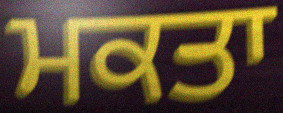
ਮਕਤਾ